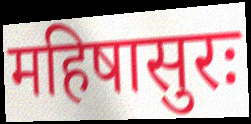
महिषासुरः